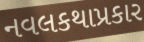
નવલકથાપ્રકાર